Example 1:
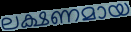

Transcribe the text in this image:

ലക്ഷണമായ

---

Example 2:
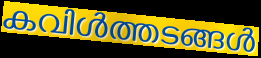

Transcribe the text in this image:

കവിൾത്തടങ്ങൾ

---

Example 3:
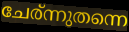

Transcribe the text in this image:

ചേര്ന്നുതന്നെ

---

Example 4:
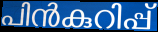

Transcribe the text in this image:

പിൻകുറിപ്പ്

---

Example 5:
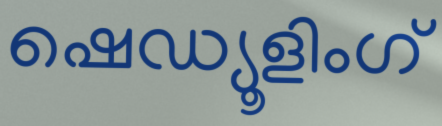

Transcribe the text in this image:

ഷെഡ്യൂളിംഗ്